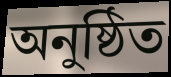
অনুষ্ঠিত